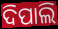
ଦିପାଲି